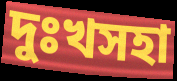
দুঃখসহা